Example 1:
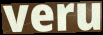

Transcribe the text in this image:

veru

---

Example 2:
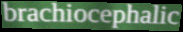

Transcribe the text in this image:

brachiocephalic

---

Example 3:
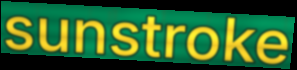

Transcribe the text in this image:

sunstroke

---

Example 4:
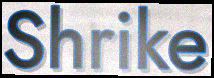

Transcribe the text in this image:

Shrike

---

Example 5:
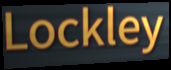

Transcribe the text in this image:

Lockley